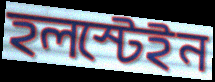
হলস্টেইন